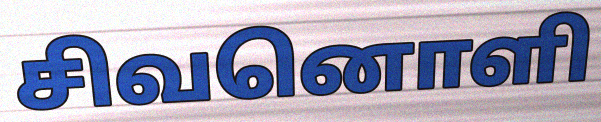
சிவனொளி